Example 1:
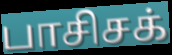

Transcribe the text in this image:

பாசிசக்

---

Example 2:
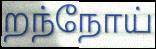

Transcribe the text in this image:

றந்நோய்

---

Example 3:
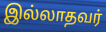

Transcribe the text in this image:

இல்லாதவர்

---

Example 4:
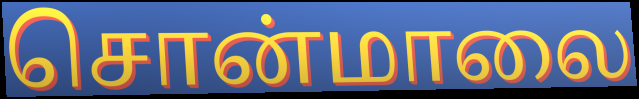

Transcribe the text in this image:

சொன்மாலை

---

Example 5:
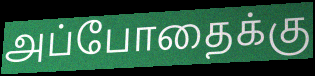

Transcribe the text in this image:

அப்போதைக்கு